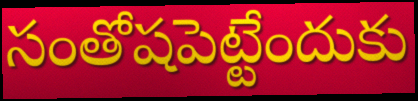
సంతోషపెట్టేందుకు